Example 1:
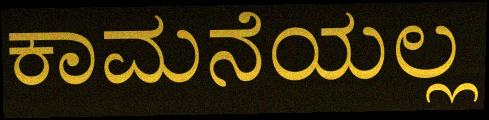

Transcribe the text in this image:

ಕಾಮನೆಯಲ್ಲ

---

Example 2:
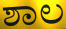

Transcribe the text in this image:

ಶಾಲ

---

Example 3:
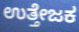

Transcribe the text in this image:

ಉತ್ತೇಜಕ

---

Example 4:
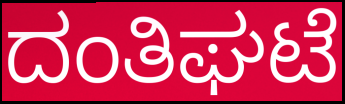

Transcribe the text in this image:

ದಂತಿಘಟೆ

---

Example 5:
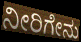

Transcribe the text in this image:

ನೀರಿಗೇನು